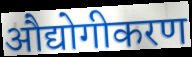
औद्योगीकरण